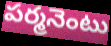
పర్మనెంటు